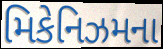
મિકેનિઝમના